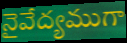
నైవేద్యముగా